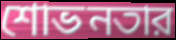
শোভনতার